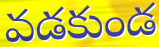
వడకుండ